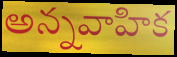
అన్నవాహిక